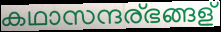
കഥാസന്ദര്ഭങ്ങള്